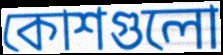
কোশগুলো